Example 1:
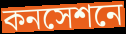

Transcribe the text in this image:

কনসেশনে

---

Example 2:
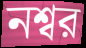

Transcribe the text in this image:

নশ্বর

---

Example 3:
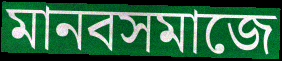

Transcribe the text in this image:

মানবসমাজে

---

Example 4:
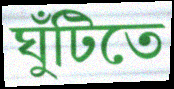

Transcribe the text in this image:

ঘুঁটিতে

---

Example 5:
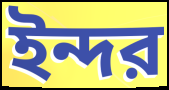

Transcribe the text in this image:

ইন্দর